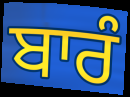
ਬਾਰੰ